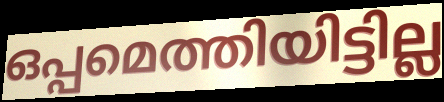
ഒപ്പമെത്തിയിട്ടില്ല